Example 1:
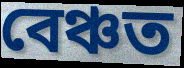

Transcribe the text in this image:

বেঞ্চত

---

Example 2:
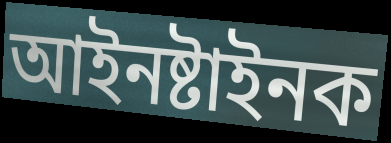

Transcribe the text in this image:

আইনষ্টাইনক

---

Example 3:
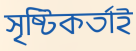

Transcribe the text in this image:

সৃষ্টিকৰ্তাই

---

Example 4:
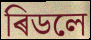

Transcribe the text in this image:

ৰিডলে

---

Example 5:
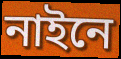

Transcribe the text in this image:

নাইনে